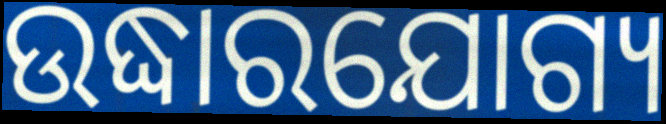
ଉଦ୍ଧାରଯୋଗ୍ୟ